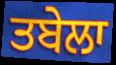
ਤਬੇਲਾ